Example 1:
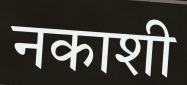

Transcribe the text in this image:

नकाशी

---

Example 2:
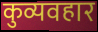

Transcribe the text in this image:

कुव्यवहार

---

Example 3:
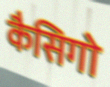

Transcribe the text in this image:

कैसिगो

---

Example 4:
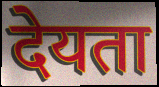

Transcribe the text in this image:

देयता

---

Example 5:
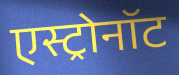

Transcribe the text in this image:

एस्ट्रोनॉट